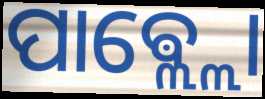
ପାଵ୍ଲ୍ଲୋ